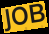
JOB